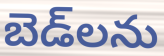
బెడ్‌లను